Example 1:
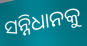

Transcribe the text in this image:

ସନ୍ନିଧାନକୁ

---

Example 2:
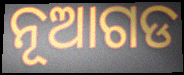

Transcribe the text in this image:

ନୂଆଗଡ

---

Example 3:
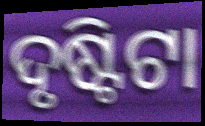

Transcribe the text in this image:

ଦୃଷ୍ଟିଟା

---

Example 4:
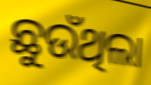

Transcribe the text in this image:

ଛୁଉଁଥିଲା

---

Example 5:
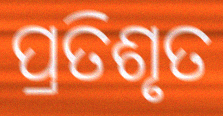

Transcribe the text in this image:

ପ୍ରତିଶୃତ